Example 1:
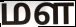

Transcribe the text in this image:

மள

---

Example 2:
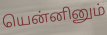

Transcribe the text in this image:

யென்னினும்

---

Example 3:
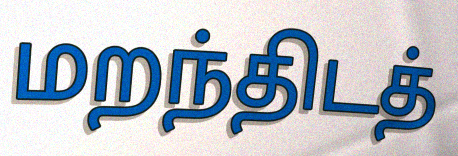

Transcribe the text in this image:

மறந்திடத்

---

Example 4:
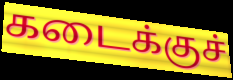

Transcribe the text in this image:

கடைக்குச்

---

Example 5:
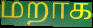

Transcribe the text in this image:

மறாக